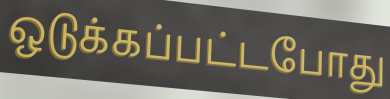
ஒடுக்கப்பட்டபோது